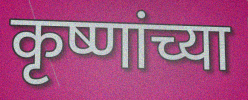
कृष्णांच्या